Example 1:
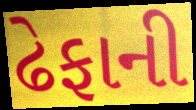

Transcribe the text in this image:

ઢેફાની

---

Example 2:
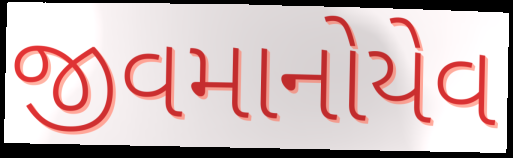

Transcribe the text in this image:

જીવમાનોયેવ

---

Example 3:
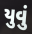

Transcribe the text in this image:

યુવું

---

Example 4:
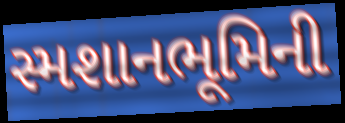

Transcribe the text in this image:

સ્મશાનભૂમિની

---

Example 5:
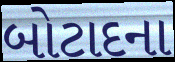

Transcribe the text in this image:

બોટાદના